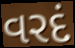
વરદં